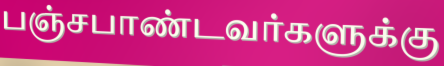
பஞ்சபாண்டவர்களுக்கு